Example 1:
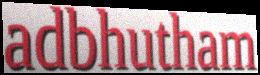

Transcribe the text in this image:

adbhutham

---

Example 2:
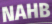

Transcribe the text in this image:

NAHB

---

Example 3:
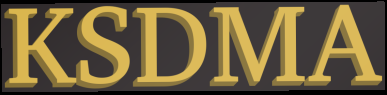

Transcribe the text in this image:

KSDMA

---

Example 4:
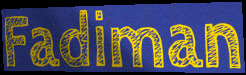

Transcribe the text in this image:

Fadiman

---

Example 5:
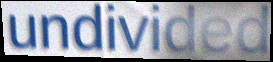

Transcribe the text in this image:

undivided